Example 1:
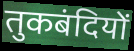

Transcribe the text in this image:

तुकबंदियों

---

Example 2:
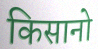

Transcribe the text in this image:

किसानो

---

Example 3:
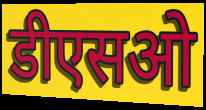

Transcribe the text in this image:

डीएसओ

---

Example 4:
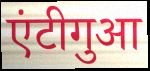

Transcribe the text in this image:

एंटीगुआ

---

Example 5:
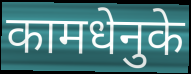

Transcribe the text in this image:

कामधेनुके